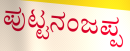
ಪುಟ್ಟನಂಜಪ್ಪ